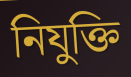
নিযুক্তি